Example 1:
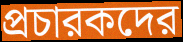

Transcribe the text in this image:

প্রচারকদের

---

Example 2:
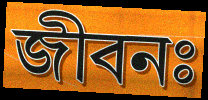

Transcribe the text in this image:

জীবনঃ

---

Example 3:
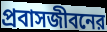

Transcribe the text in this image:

প্রবাসজীবনের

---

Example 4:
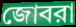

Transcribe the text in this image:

জোবরা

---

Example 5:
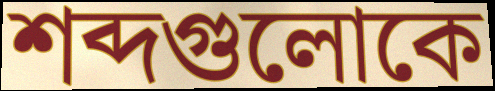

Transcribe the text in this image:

শব্দগুলোকে